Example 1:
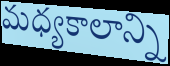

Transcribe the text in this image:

మధ్యకాలాన్ని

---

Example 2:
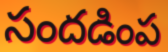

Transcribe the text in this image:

సందడింప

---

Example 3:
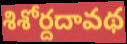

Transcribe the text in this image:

శిశోర్దదావథ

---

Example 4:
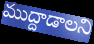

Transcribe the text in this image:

ముద్దాడాలని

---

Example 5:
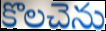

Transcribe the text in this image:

కొలచెను